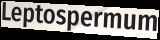
Leptospermum